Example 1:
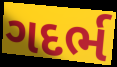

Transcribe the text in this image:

ગદર્ભ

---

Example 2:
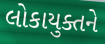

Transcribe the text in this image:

લોકાયુક્તને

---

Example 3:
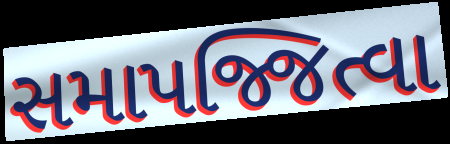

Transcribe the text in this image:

સમાપજ્જિત્વા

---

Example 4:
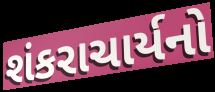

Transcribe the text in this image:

શંકરાચાર્યનો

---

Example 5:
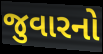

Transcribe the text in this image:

જુવારનો